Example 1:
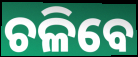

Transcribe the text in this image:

ଚଳିବେ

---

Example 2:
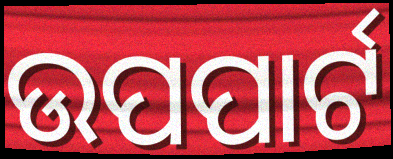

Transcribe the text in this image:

ଉପପାର୍ଟ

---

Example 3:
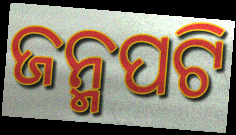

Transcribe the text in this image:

ଜନ୍ମପଟି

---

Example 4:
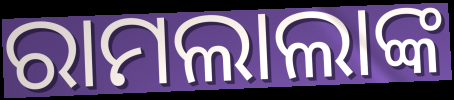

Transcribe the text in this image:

ରାମଲାଲାଙ୍କ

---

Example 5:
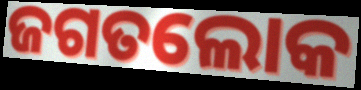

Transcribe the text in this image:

ଜଗତଲୋକ